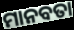
ମାନବତା